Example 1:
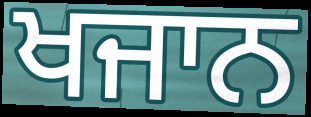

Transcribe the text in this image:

ਖਜਾਨ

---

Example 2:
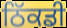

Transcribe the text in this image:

ਠਿੱਕਡੀ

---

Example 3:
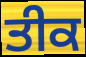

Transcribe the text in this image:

ਤੀਕ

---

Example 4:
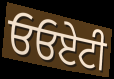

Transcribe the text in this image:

ਓਓਏਟੀ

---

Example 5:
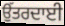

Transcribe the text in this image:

ਉੱਤਰਦਾਈ